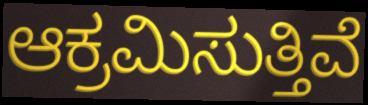
ಆಕ್ರಮಿಸುತ್ತಿವೆ